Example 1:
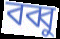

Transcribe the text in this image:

বব্বু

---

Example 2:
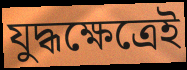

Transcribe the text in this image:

যুদ্ধক্ষেত্রেই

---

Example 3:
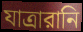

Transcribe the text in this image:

যাত্রারানি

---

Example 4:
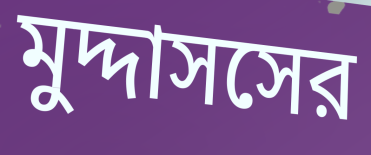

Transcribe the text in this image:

মুদ্দাসসের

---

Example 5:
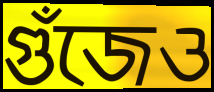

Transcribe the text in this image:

গুঁজেও